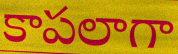
కాపలాగా